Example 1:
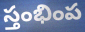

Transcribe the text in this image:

స్తంభింప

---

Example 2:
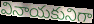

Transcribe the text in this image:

వినాయకునిగా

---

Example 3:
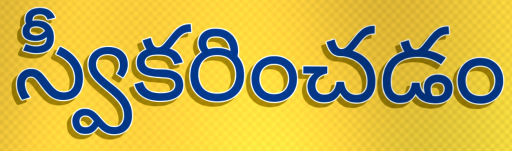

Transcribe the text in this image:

స్వీకరించడం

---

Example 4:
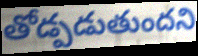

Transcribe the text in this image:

తోడ్పడుతుందని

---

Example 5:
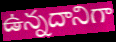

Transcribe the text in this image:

ఉన్నదానిగా